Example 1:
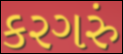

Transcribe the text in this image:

કરગરું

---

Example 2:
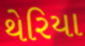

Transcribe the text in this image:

થેરિયા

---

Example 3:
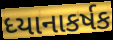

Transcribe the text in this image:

ધ્યાનાકર્ષક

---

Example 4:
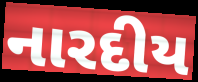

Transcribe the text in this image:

નારદીય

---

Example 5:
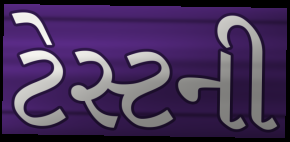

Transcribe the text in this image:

ટેસ્ટની